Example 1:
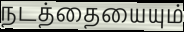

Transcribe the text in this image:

நடத்தையையும்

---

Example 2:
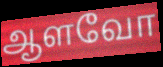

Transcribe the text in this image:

ஆளவோ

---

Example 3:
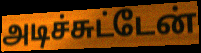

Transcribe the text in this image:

அடிச்சுட்டேன்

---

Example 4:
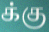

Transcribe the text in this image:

க்கு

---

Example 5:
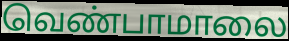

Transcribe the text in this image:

வெண்பாமாலை